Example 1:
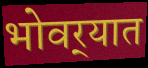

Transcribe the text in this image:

भोवर्यात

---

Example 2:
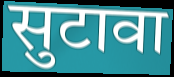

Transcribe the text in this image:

सुटावा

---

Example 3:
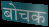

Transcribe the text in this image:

बोचक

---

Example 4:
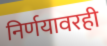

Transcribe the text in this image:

निर्णयावरही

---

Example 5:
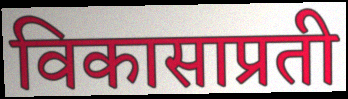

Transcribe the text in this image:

विकासाप्रती